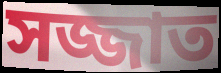
সজ্জাত